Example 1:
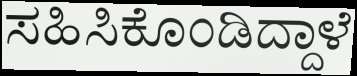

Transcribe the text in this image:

ಸಹಿಸಿಕೊಂಡಿದ್ದಾಳೆ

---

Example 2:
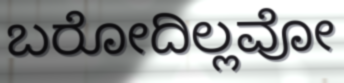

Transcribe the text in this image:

ಬರೋದಿಲ್ಲವೋ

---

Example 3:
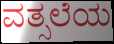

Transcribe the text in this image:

ವತ್ಸಲೆಯ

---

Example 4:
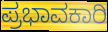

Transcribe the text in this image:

ಪ್ರಭಾವಕಾರಿ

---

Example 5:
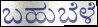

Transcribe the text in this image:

ಬಹುಬೆಳೆ